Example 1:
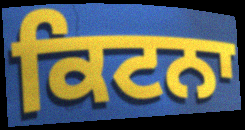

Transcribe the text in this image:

ਕਿਟਨਾ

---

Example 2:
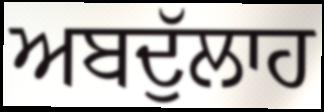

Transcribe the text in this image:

ਅਬਦੁੱਲਾਹ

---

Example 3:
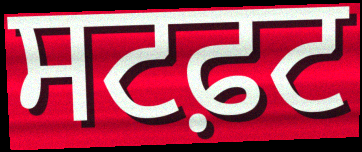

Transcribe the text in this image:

ਸਟਫ਼ਟ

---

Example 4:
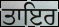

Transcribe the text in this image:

ਤਾਇਰ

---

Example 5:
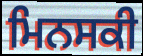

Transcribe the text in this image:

ਮਿਨਸਕੀ